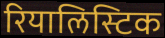
रियालिस्टिक